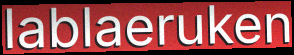
lablaeruken